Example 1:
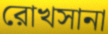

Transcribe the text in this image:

রোখসানা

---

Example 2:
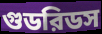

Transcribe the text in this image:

গুডরিডস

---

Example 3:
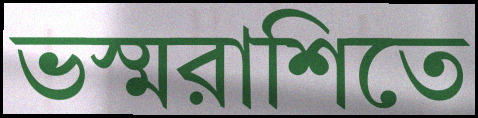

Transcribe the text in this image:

ভস্মরাশিতে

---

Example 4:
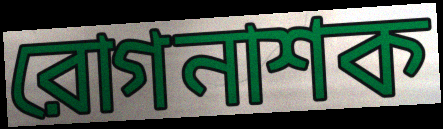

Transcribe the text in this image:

রোগনাশক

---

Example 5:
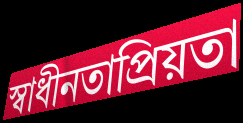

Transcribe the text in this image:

স্বাধীনতাপ্রিয়তা